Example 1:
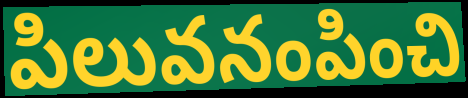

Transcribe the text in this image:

పిలువనంపించి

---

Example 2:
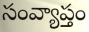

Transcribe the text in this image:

సంవ్యాప్తం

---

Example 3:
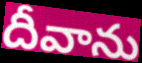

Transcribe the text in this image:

దీవాను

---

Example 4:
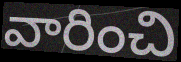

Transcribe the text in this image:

వారించి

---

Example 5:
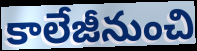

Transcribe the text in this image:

కాలేజీనుంచి